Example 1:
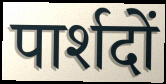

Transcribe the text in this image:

पार्शदों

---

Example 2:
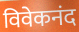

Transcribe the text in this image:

विवेकनंद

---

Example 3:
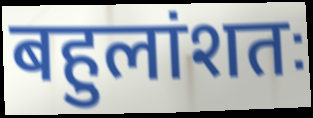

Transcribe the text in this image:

बहुलांशतः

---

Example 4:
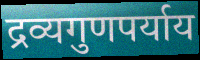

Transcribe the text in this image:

द्रव्यगुणपर्याय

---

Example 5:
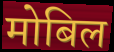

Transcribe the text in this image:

मोबिल